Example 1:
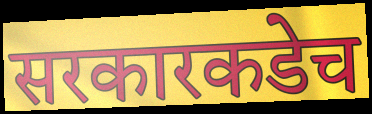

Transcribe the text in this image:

सरकारकडेच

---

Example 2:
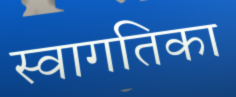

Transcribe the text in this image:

स्वागतिका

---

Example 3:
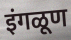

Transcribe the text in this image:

इंगळूण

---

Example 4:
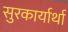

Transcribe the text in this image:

सुरकार्यार्था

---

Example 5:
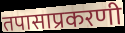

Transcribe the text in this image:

तपासाप्रकरणी